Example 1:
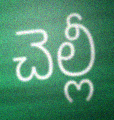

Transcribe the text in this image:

చెల్లీ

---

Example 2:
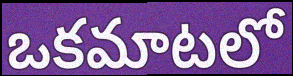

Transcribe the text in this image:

ఒకమాటలో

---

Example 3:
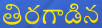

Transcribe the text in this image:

తిరగాడిన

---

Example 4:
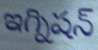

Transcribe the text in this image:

ఇగ్నిషన్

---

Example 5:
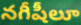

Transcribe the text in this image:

నగీషీలూ